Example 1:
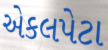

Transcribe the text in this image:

એકલપેટા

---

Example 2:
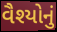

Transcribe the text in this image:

વૈશ્યોનું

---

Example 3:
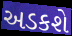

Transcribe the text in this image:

અડકશે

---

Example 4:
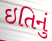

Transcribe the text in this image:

ઇતિનું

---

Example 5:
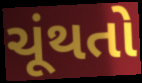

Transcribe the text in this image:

ચૂંથતો